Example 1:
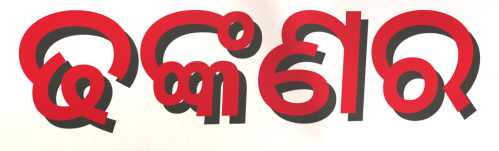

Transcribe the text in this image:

ଢଙ୍କଣର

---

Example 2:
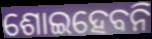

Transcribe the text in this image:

ଶୋଇହେବନି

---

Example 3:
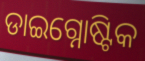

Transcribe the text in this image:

ଡାଇଗ୍ନୋଷ୍ଟିକ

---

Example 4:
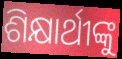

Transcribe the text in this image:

ଶିକ୍ଷାର୍ଥୀଙ୍କୁ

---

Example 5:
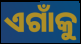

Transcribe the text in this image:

ଏଗାଁକୁ